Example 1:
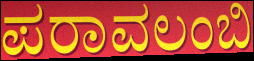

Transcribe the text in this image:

ಪರಾವಲಂಬಿ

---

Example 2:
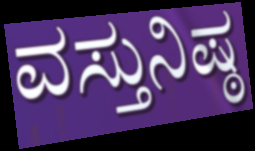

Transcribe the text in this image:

ವಸ್ತುನಿಷ್ಠ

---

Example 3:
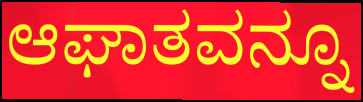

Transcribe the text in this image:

ಆಘಾತವನ್ನೂ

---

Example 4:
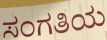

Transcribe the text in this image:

ಸಂಗತಿಯ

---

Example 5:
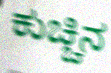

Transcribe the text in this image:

ಕುಚ್ಚಿನ